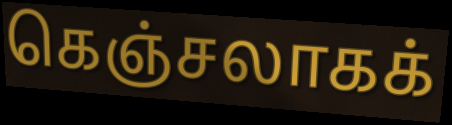
கெஞ்சலாகக்